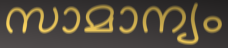
സാമാന്യം